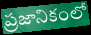
ప్రజానికంలో